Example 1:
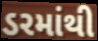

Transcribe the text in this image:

ડરમાંથી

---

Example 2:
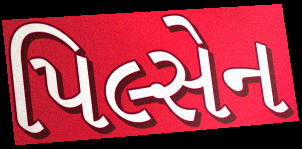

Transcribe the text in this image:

પિલ્સેન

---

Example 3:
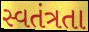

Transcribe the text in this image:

સ્વતંત્રતા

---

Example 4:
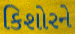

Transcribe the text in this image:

કિશોરને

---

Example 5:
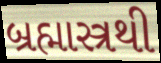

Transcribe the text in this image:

બ્રહ્માસ્ત્રથી